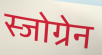
स्जोग्रेन